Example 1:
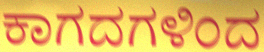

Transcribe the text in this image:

ಕಾಗದಗಳಿಂದ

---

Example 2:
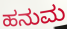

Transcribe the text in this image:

ಹನುಮ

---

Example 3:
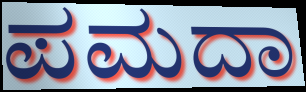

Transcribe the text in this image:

ಪಮದಾ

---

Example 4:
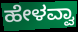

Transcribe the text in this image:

ಹೇಳವ್ವಾ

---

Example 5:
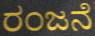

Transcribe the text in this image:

ರಂಜನೆ